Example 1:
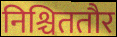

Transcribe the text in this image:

निश्चिततौर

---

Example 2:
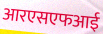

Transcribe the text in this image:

आरएसएफआई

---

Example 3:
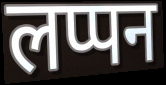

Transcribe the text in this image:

लप्पन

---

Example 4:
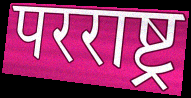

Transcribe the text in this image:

परराष्ट्र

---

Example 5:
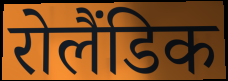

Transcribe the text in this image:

रोलैंडिक